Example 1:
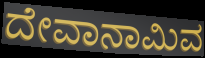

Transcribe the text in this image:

ದೇವಾನಾಮಿವ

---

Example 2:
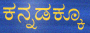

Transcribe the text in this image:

ಕನ್ನಡಕ್ಕೂ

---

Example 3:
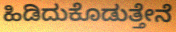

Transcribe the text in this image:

ಹಿಡಿದುಕೊಡುತ್ತೇನೆ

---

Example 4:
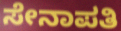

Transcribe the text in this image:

ಸೇನಾಪತಿ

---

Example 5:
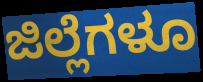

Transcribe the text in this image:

ಜಿಲ್ಲೆಗಳೂ